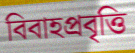
বিবাহপ্রবৃত্তি